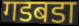
गडबडा